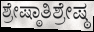
ಶ್ರೇಷ್ಠಾತಿಶ್ರೇಷ್ಠ